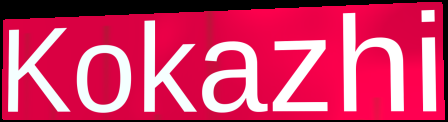
Kokazhi